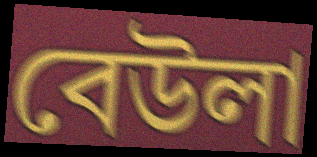
বেউলা